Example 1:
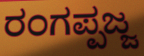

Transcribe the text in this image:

ರಂಗಪ್ಪಜ್ಜ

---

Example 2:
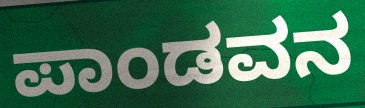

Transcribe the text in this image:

ಪಾಂಡವನ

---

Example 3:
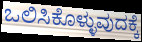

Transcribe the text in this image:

ಒಲಿಸಿಕೊಳ್ಳುವುದಕ್ಕೆ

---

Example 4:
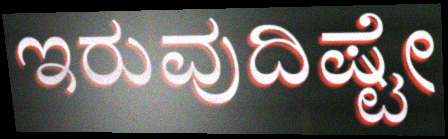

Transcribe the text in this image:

ಇರುವುದಿಷ್ಟೇ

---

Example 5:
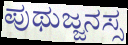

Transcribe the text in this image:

ಪುಥುಜ್ಜನಸ್ಸ